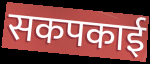
सकपकाई